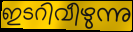
ഇടറിവീഴുന്നു